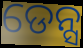
ଡେନ୍ସ